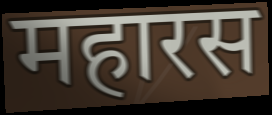
महारस